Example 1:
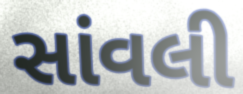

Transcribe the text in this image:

સાંવલી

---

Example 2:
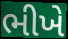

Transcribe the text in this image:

ભીખે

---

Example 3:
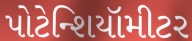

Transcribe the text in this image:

પોટેન્શિયૉમીટર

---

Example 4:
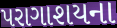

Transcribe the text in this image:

પરાગાશયના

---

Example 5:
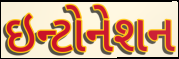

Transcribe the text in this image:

ઇન્ટોનેશન